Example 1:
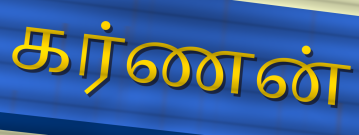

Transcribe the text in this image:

கர்ணன்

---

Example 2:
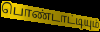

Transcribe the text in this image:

பொண்டாட்டியும்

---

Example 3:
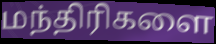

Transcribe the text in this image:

மந்திரிகளை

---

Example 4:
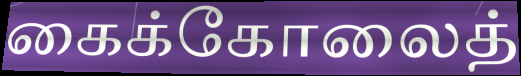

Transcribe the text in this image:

கைக்கோலைத்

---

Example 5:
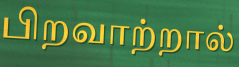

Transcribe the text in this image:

பிறவாற்றால்